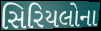
સિરિયલોના